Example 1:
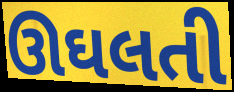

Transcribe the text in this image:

ઊઘલતી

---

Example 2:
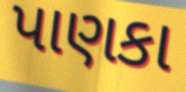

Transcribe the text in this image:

પાણકા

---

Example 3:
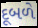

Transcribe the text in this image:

દૂબળે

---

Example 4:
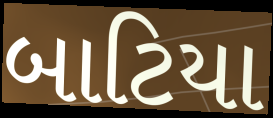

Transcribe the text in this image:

બાટિયા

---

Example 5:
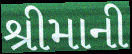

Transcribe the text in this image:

શ્રીમાની